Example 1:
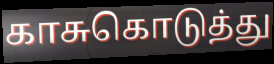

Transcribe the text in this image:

காசுகொடுத்து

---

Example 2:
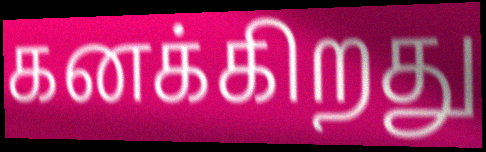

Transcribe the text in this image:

கனக்கிறது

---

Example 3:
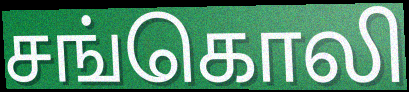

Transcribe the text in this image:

சங்கொலி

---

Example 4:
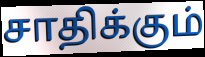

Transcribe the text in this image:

சாதிக்கும்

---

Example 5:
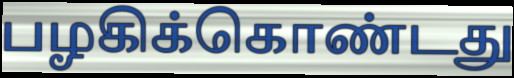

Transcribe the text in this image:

பழகிக்கொண்டது